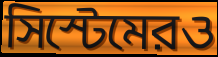
সিস্টেমেরও